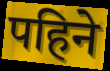
पहिने